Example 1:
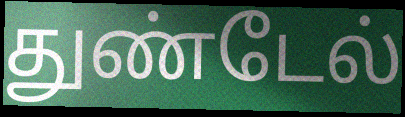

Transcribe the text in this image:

துண்டேல்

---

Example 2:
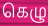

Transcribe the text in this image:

கெழு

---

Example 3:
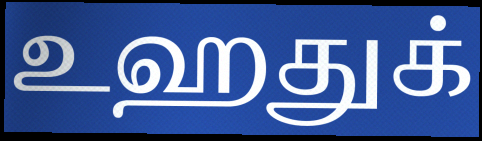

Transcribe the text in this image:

உஹதுக்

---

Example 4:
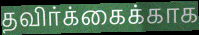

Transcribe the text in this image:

தவிர்க்கைக்காக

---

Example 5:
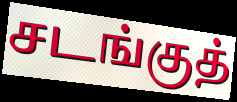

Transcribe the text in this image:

சடங்குத்